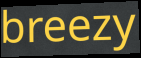
breezy